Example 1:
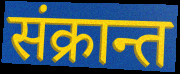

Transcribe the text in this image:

संक्रान्त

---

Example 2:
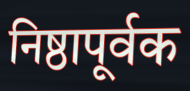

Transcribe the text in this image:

निष्ठापूर्वक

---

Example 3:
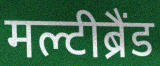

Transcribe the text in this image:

मल्टीब्रैंड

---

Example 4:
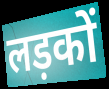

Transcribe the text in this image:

लड़कों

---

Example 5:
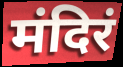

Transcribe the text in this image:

मंदिरं